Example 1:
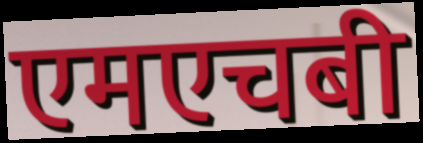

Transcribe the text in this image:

एमएचबी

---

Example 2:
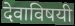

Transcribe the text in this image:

देवाविषयी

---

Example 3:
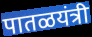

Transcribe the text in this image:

पातळयंत्री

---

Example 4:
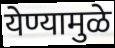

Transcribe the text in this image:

येण्यामुळे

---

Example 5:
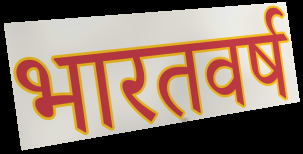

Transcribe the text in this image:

भारतवर्ष